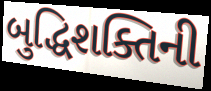
બુદ્ધિશક્તિની